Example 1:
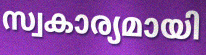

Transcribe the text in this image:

സ്വകാര്യമായി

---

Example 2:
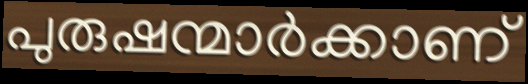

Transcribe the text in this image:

പുരുഷന്മാർക്കാണ്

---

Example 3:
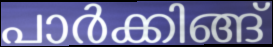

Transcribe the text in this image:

പാർക്കിങ്ങ്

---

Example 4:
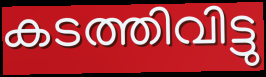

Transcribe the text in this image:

കടത്തിവിട്ടു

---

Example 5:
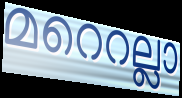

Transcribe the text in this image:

മറെറല്ലാ